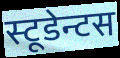
स्टूडेन्टस